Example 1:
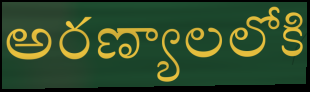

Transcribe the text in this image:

అరణ్యాలలోకి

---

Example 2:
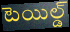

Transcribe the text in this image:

టెయిల్డ్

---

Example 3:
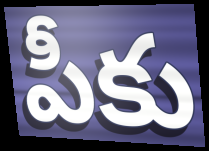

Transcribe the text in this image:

పీకు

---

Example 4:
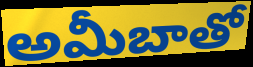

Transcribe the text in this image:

అమీబాతో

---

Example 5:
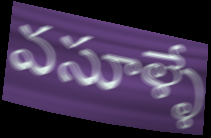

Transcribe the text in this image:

వసూళ్ళే